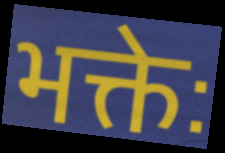
भक्तेः